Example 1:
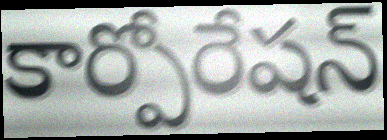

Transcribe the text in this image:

కార్పోరేషన్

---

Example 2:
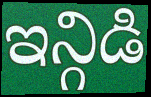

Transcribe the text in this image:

ఇన్గిడి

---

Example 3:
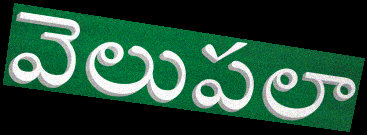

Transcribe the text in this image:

వెలుపలా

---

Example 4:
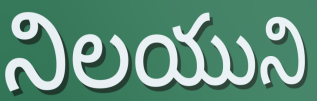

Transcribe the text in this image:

నిలయుని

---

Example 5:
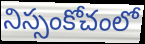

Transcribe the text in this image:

నిస్సంకోచంలో